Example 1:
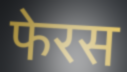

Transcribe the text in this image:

फेरस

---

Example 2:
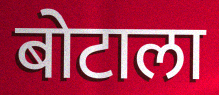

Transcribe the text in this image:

बोटाला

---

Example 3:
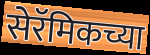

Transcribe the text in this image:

सेरॅमिकच्या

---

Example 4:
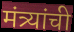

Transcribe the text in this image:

मंत्र्यांची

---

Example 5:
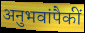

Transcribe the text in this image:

अनुभवांपैकीं